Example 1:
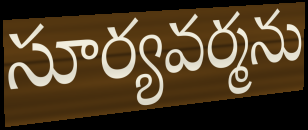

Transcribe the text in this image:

సూర్యవర్మను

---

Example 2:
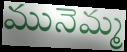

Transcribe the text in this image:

మునెమ్మ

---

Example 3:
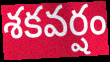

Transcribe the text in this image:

శకవర్షం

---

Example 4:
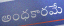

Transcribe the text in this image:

అంధకారమే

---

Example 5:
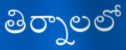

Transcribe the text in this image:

తిర్నాలలో